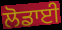
ਲੋਡਾਈ